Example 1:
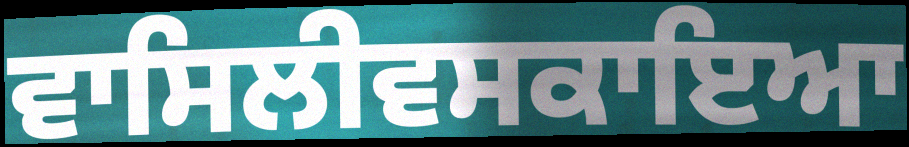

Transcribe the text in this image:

ਵਾਸਿਲੀਵਸਕਾਇਆ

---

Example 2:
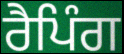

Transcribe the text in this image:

ਰੈਪਿੰਗ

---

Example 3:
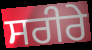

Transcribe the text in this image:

ਸਰੀਰੇ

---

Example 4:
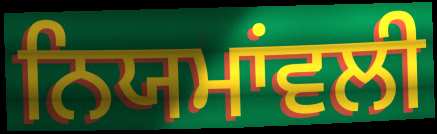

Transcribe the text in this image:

ਨਿਯਮਾਂਵਲੀ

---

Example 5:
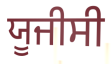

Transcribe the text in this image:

ਯੂਜੀਸੀ